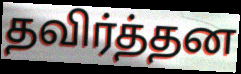
தவிர்த்தன